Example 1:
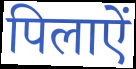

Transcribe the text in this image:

पिलाऐं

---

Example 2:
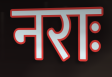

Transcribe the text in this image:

नराः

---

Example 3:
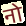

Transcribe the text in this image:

नो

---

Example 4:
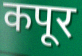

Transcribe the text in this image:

कपूर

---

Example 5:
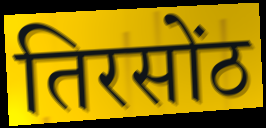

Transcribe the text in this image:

तिरसोंठ